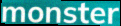
monster